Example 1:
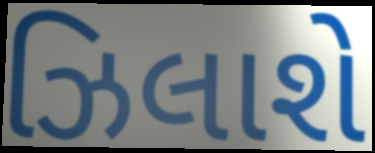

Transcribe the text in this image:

ઝિલાશે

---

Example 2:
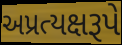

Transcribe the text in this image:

અપ્રત્યક્ષરૂપે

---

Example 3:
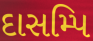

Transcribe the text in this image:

દાસમ્પિ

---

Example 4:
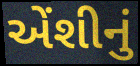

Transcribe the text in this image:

એંશીનું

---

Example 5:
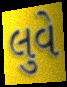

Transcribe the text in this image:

લુવે